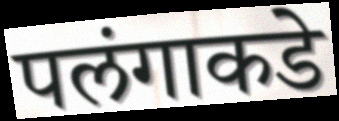
पलंगाकडे